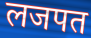
लजपत